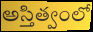
అస్తిత్వంలో